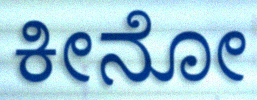
ಕೀನೋ